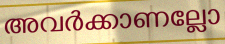
അവർക്കാണല്ലോ